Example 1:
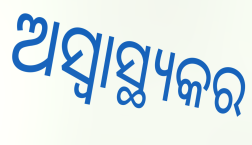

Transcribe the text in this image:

ଅସ୍ୱାସ୍ଥ୍ୟକର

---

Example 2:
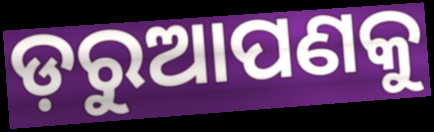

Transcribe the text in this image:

ଡ଼ରୁଆପଣକୁ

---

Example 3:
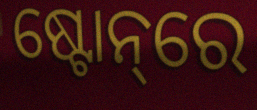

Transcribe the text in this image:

ଷ୍ଟୋନ୍‌ରେ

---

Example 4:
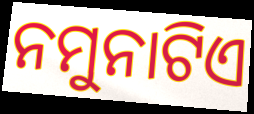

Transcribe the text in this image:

ନମୁନାଟିଏ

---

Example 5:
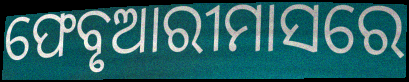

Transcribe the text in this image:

ଫେବୃଆରୀମାସରେ